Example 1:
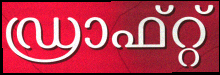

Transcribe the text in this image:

ഡ്രാഫ്റ്റ്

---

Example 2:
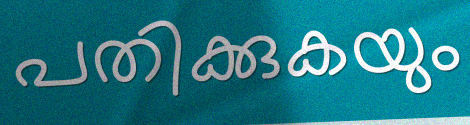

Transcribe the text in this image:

പതിക്കുകയും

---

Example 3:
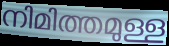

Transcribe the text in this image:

നിമിത്തമുള്ള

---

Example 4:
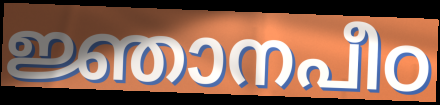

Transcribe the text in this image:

ജ്ഞാനപീഠ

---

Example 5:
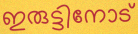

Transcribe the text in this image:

ഇരുട്ടിനോട്